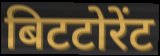
बिटटोरेंट